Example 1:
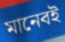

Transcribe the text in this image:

মানেবই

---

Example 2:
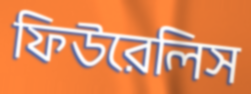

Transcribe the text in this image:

ফিউরেলিস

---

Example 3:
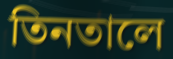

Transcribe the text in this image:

তিনতালে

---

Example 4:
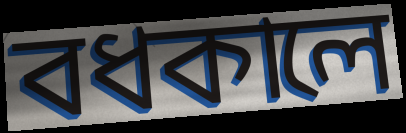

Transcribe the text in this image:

বধকালে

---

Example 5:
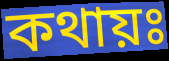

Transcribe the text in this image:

কথায়ঃ